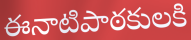
ఈనాటిపాఠకులకి